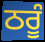
ਠਰੂੰ